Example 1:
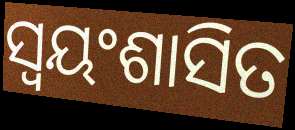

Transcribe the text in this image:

ସ୍ବୟଂଶାସିତ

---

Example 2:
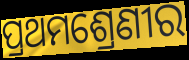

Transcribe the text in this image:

ପ୍ରଥମଶ୍ରେଣୀର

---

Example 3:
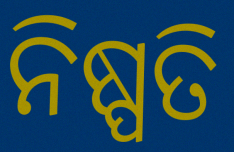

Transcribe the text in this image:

ନିଷ୍ପତି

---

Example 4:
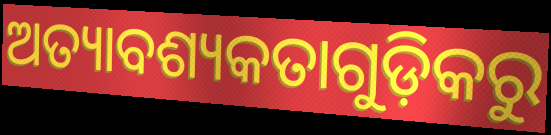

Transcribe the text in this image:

ଅତ୍ୟାବଶ୍ୟକତାଗୁଡ଼ିକରୁ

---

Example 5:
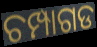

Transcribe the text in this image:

ଚମ୍ପାଗଡ